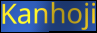
Kanhoji